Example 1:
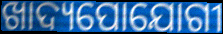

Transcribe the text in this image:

ଖାଦ୍ୟପୋଯୋଗୀ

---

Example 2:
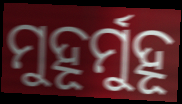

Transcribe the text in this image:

ମୁହୂର୍ମୁହୂ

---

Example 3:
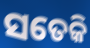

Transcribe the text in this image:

ସତେକି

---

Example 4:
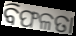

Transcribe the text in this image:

ବିଫଳତା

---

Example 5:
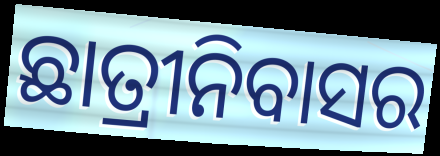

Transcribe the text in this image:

ଛାତ୍ରୀନିବାସର